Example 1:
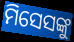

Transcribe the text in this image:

ମିସେସଙ୍କୁ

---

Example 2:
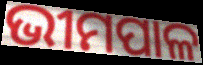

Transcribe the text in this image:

ଭୀମପାଳ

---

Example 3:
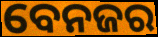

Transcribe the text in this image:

ବେନଜର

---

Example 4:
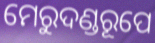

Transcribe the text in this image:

ମେରୁଦଣ୍ଡରୂପେ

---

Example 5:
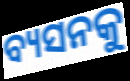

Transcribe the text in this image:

ବ୍ୟସନକୁ